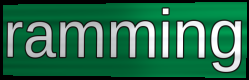
ramming